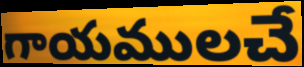
గాయములచే